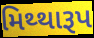
મિથ્થારૂપ